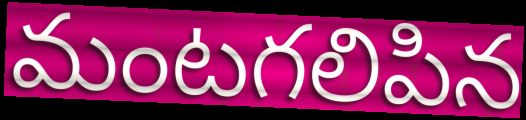
మంటగలిపిన